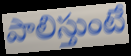
పాలిస్తుంటే